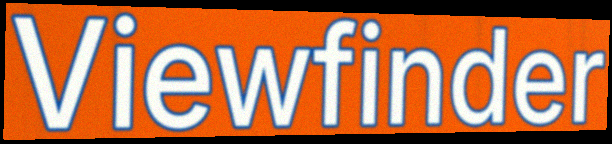
Viewfinder